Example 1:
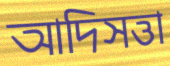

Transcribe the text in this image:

আদিসত্তা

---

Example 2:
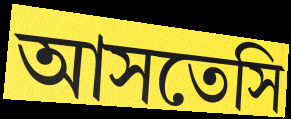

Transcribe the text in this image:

আসতেসি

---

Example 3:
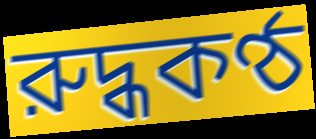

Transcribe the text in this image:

রুদ্ধকণ্ঠ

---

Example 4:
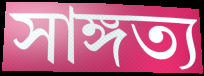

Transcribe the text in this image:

সাঙ্গত্য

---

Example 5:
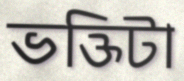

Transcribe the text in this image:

ভক্তিটা